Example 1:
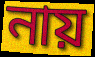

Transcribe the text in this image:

নায়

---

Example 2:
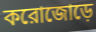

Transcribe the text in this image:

করোজোড়ে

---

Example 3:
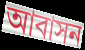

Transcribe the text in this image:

আবাসন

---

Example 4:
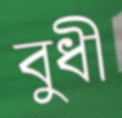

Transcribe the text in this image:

বুধী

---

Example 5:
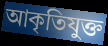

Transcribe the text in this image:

আকৃতিযুক্ত